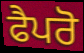
ਫੈਪਰੋ